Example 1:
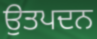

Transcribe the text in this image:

ਉਤਪਦਨ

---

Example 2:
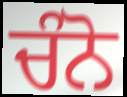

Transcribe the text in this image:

ਚੰਨੋ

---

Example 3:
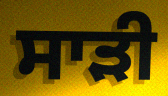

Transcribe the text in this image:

ਸਾੜੀ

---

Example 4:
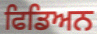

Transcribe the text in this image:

ਫਿਡਿਅਨ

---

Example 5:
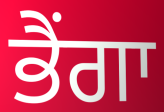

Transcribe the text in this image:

ਭੈਂਗਾ